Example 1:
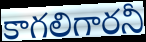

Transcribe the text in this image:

కాగలిగారనీ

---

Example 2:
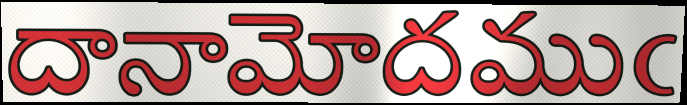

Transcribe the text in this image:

దానామోదముఁ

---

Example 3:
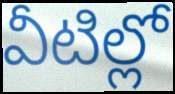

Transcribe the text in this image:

వీటిల్లో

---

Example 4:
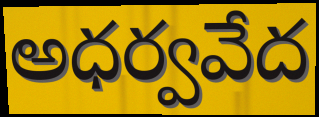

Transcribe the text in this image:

అధర్వవేద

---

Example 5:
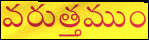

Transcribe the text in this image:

వరుత్తముం